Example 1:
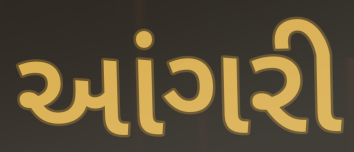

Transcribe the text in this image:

આંગરી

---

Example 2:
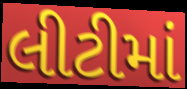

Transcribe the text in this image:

લીટીમાં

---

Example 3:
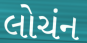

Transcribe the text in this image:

લોચંન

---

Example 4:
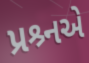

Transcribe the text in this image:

પ્રશ્ર્નએ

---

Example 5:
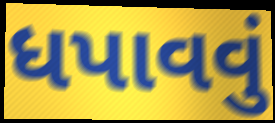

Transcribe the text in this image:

ધપાવવું